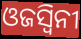
ଓଜସ୍ଵିନୀ